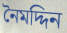
নৈমদ্দিন